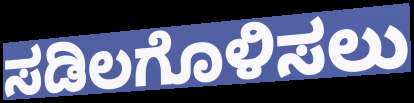
ಸಡಿಲಗೊಳಿಸಲು